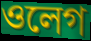
ওলেগ